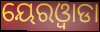
ୟେରଓ୍ୱାଡା